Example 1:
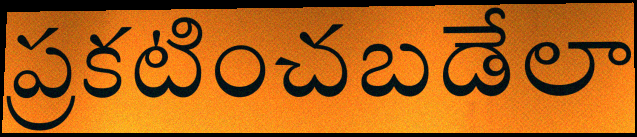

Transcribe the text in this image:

ప్రకటించబడేలా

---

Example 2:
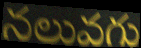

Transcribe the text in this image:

నలువగు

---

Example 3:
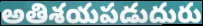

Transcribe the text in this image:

అతిశయపడుదురు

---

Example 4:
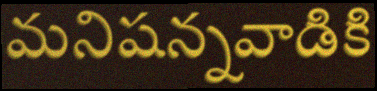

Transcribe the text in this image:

మనిషన్నవాడికి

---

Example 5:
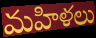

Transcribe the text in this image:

మహిళలు